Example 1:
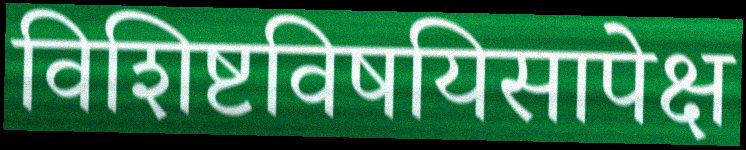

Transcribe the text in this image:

विशिष्टविषयिसापेक्ष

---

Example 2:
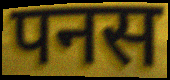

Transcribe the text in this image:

पनस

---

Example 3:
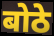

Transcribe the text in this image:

बोठे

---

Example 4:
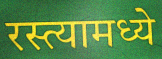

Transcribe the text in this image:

रस्त्यामध्ये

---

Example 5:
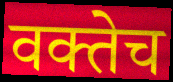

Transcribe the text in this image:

वक्तेच